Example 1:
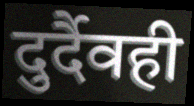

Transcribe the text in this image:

दुर्दैवही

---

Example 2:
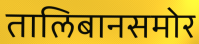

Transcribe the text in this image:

तालिबानसमोर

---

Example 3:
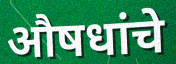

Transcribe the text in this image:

औषधांचे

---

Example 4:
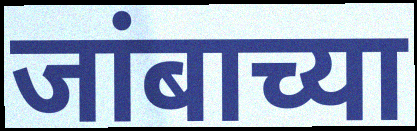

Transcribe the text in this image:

जांबाच्या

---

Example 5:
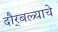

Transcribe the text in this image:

दौर्बल्याचे